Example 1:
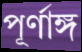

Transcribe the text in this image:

পূৰ্ণাঙ্গ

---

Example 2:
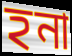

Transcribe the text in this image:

হনা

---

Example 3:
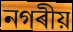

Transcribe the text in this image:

নগৰীয়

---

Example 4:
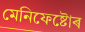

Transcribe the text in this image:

মেনিফেষ্টোৰ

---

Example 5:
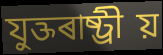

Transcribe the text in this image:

যুক্তৰাষ্ট্ৰীয়